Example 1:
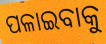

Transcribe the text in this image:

ପଳାଇବାକୁ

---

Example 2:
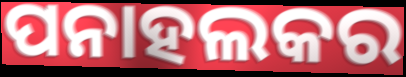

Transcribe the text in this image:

ପନାହଲକର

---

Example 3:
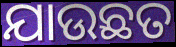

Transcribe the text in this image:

ଯାଉଛତ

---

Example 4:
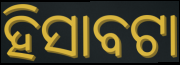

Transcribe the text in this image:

ହିସାବଟା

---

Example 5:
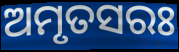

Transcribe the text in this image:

ଅମୃତସରଃ